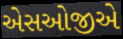
એસઓજીએ